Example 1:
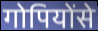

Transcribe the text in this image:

गोपियोंसे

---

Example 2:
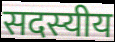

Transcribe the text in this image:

सदस्‍यीय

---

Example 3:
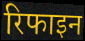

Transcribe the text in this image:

रिफाइन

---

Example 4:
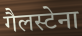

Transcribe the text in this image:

गैलस्टेना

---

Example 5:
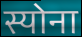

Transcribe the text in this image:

स्योना